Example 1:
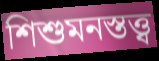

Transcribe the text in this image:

শিশুমনস্তত্ত্ব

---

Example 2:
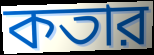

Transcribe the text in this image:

কতার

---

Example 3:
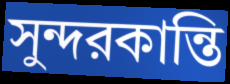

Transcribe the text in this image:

সুন্দরকান্তি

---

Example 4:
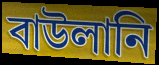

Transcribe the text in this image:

বাউলানি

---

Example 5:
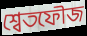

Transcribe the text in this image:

শ্বেতফৌজ